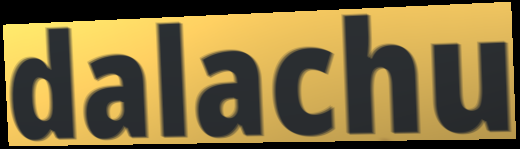
dalachu